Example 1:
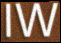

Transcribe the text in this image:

IW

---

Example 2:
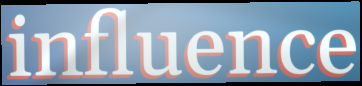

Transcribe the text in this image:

influence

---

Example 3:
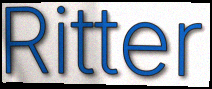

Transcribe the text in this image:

Ritter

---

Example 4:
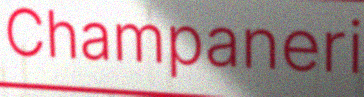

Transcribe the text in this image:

Champaneri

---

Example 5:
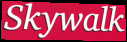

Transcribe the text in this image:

Skywalk